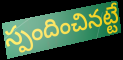
స్పందించినట్టే